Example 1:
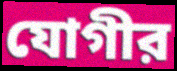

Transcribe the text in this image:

যোগীর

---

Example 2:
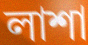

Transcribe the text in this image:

লাশা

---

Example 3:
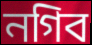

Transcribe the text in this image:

নগিব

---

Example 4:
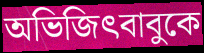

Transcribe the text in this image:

অভিজিৎবাবুকে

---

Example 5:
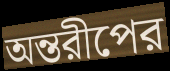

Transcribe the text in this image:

অন্তরীপের